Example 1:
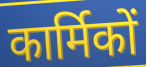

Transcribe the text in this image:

कार्मिकों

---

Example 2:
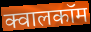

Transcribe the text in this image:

क्वालकॉम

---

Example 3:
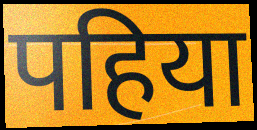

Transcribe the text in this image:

पहिया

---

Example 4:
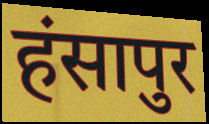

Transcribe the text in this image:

हंसापुर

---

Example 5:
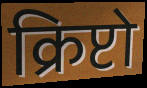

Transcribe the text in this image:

क्रिप्टो